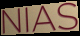
NIAS